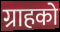
ग्राहको